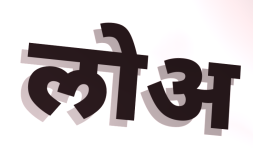
लोअ